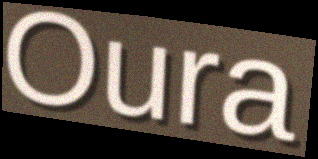
Oura